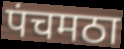
पंचमठा